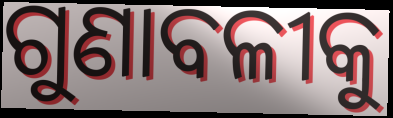
ଗୁଣାବଳୀକୁ